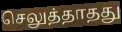
செலுத்தாதது